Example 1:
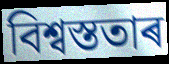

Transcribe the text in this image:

বিশ্বস্ততাৰ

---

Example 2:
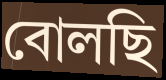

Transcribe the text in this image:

বোলছি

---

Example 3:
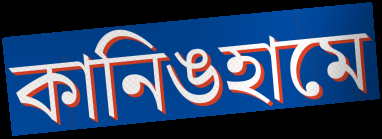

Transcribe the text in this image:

কানিঙহামে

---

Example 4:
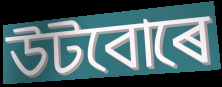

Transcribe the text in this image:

উটবোৰে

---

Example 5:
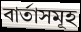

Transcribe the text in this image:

বাৰ্তাসমূহ